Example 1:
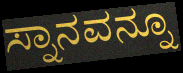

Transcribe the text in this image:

ಸ್ನಾನವನ್ನೂ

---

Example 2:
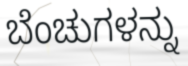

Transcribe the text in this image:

ಬೆಂಚುಗಳನ್ನು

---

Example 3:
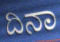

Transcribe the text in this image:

ದಿನಾ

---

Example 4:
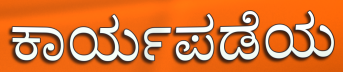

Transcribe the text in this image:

ಕಾರ್ಯಪಡೆಯ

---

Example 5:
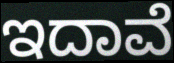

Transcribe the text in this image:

ಇದಾವೆ